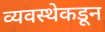
व्यवस्थेकडून